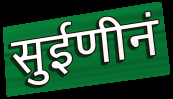
सुईणीनं